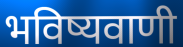
भविष्यवाणी